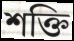
শক্তি